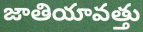
జాతియావత్తు